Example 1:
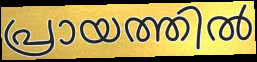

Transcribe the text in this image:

പ്രായത്തിൽ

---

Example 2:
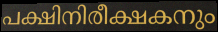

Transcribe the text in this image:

പക്ഷിനിരീക്ഷകനും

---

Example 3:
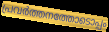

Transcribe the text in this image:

പ്രവർത്തനത്തോടൊപ്പം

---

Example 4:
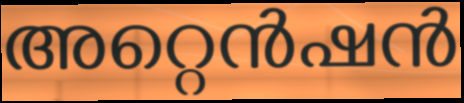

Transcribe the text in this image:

അറ്റെൻഷൻ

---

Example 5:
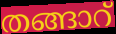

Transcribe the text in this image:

തങ്ങാറ്